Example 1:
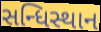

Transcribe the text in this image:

સન્ધિસ્થાન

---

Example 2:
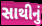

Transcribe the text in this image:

સાથીનું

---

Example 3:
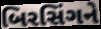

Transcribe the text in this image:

બિરસિંગને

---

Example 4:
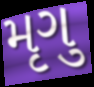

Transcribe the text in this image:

મૃગુ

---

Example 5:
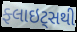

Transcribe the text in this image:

ફ્લાઇટ્સથી